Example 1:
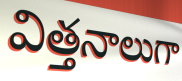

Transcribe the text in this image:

విత్తనాలుగా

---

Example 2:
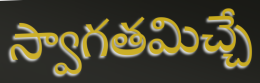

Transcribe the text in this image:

స్వాగతమిచ్చే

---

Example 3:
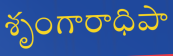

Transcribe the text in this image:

శృంగారాధిపా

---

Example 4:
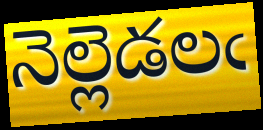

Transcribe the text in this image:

నెల్లెడలఁ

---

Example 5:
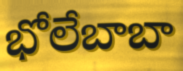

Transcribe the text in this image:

భోలేబాబా